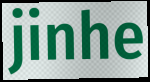
jinhe